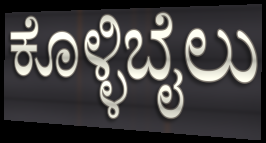
ಕೊಳ್ಳಿಬೈಲು